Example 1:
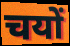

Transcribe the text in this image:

चयों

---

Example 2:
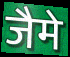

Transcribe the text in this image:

जैमे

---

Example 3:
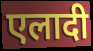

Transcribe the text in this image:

एलादी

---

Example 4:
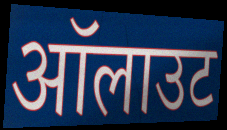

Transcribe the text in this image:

ऑलाउट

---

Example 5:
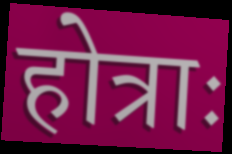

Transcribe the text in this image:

होत्राः